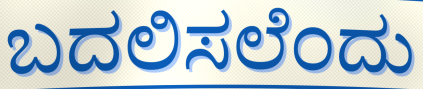
ಬದಲಿಸಲೆಂದು